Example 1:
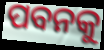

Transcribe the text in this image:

ପବନକୁ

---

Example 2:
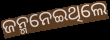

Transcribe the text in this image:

ଜନ୍ମନେଇଥିଲେ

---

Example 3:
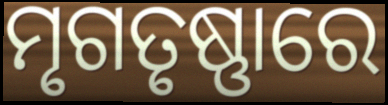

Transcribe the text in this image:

ମୃଗତୃଷ୍ଣାରେ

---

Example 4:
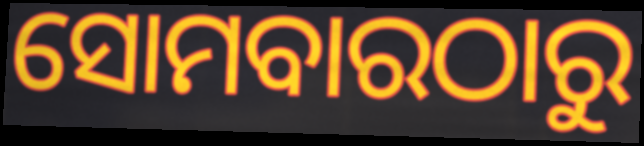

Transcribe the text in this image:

ସୋମବାରଠାରୁ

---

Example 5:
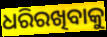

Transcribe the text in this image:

ଧରିରଖିବାକୁ